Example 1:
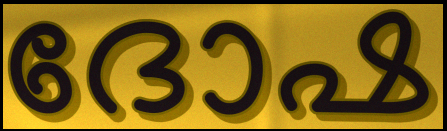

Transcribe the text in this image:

ദോഷ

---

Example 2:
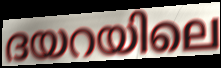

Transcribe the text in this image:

ദയറയിലെ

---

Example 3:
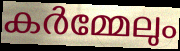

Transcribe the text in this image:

കർമ്മേലും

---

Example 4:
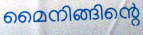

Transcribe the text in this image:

മൈനിങ്ങിന്റെ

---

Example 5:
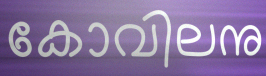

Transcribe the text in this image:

കോവിലനു